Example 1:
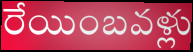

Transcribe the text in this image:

రేయింబవళ్లు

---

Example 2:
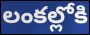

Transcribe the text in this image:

లంకల్లోకి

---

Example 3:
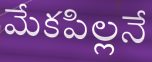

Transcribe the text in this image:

మేకపిల్లనే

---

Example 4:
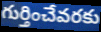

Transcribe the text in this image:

గుర్తించేవరకు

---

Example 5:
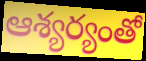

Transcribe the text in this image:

ఆశ్యర్యంతో